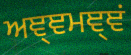
ਅਞ੍ਞਮਞ੍ਞਂ